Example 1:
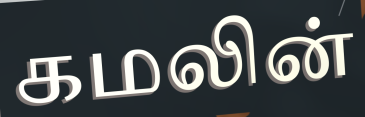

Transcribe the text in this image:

கமலின்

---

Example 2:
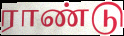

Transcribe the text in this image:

ராண்டு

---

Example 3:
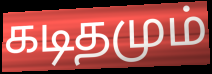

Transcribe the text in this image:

கடிதமும்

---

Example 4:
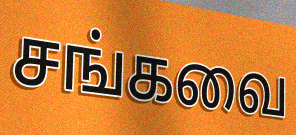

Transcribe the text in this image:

சங்கவை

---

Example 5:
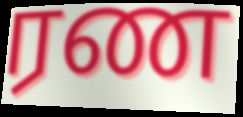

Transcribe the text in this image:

ரண